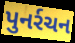
પુનર્રચન